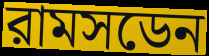
রামসডেন